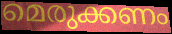
മെരുക്കണം